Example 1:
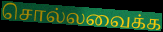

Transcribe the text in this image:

சொல்லவைக்க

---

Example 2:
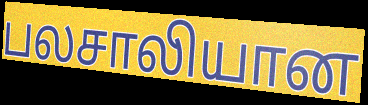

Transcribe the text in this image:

பலசாலியான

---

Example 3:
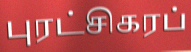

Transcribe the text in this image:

புரட்சிகரப்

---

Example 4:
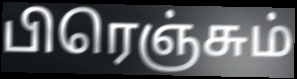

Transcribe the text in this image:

பிரெஞ்சும்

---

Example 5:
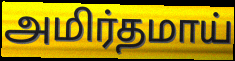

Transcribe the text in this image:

அமிர்தமாய்